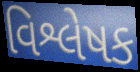
વિશ્લેષક